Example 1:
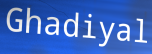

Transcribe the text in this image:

Ghadiyal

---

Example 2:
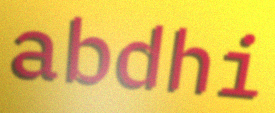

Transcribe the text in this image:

abdhi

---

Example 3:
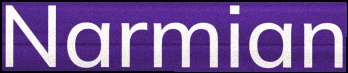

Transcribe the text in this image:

Narmian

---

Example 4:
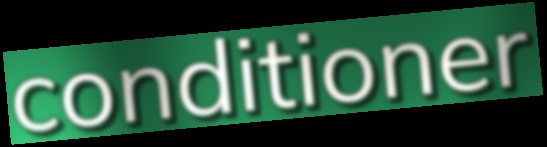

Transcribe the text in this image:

conditioner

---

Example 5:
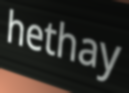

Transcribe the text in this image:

hethay